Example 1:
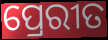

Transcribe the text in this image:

ପ୍ରେରୀତ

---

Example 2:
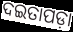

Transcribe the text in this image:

ଦଇତାପଡ଼ା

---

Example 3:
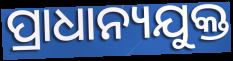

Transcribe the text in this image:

ପ୍ରାଧାନ୍ୟଯୁକ୍ତ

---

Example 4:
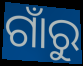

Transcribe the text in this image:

ଗାଁରୁ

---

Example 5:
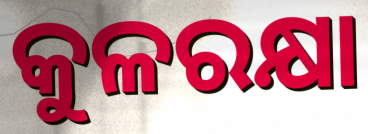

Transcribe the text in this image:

କୁଳରକ୍ଷା